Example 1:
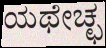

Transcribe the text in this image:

ಯಥೇಚ್ಛ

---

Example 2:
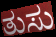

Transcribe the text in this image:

ತುಸು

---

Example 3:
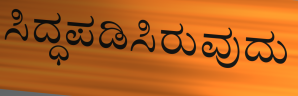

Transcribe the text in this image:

ಸಿದ್ಧಪಡಿಸಿರುವುದು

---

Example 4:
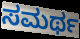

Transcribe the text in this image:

ಸಮರ್ಥ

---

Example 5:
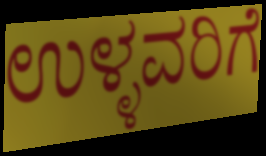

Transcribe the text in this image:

ಉಳ್ಳವರಿಗೆ